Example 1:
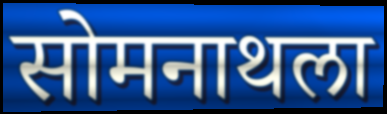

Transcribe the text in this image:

सोमनाथला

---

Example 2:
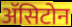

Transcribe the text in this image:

ॲसिटोन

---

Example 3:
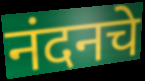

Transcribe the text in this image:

नंदनचे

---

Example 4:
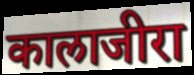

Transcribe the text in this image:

कालाजीरा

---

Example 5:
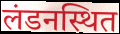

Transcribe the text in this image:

लंडनस्थित